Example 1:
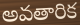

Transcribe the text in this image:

అవతారిక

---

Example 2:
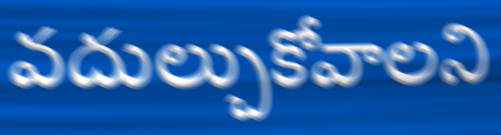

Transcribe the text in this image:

వదుల్చుకోవాలని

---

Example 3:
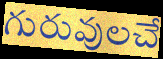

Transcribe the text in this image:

గురువులచే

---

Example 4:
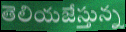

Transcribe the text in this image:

తెలియజేస్తున్న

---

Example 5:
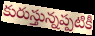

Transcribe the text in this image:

కురుస్తున్నప్పటికీ